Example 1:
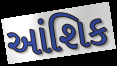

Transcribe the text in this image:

આંશિક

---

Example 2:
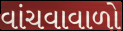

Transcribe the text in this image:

વાંચવાવાળો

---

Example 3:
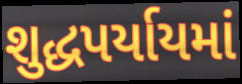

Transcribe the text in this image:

શુદ્ધપર્યાયમાં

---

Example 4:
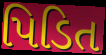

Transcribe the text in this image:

પિડિત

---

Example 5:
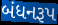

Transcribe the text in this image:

બંધનરૂપ